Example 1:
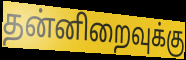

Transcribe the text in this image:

தன்னிறைவுக்கு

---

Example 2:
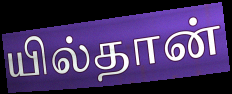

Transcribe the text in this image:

யில்தான்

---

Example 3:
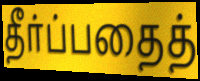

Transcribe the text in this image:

தீர்ப்பதைத்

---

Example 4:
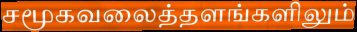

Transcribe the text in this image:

சமூகவலைத்தளங்களிலும்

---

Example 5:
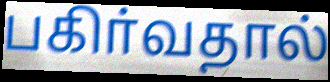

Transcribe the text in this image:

பகிர்வதால்